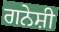
ਗਨੇਸ਼ੀ